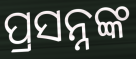
ପ୍ରସନ୍ନଙ୍କ